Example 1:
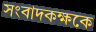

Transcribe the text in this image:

সংবাদকক্ষকে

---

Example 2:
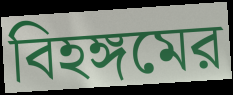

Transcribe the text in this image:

বিহঙ্গমের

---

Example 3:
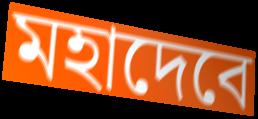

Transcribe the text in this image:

মহাদেবে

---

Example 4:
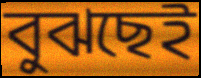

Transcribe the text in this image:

বুঝছেই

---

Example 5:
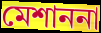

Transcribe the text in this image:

মেশাননা